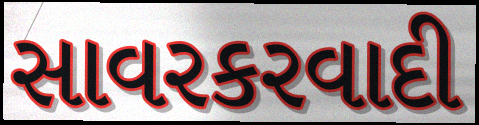
સાવરકરવાદી